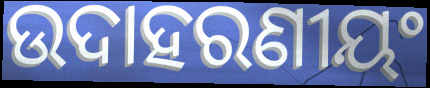
ଉଦାହରଣୀୟଂ